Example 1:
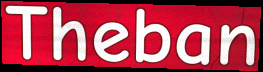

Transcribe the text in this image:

Theban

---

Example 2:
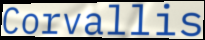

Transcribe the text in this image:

Corvallis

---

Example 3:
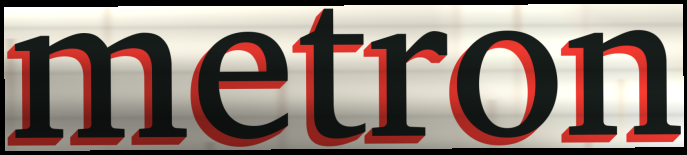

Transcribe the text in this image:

metron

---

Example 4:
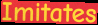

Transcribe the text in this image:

Imitates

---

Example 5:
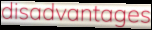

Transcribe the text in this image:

disadvantages